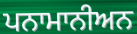
ਪਨਾਮਾਨੀਅਨ